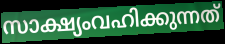
സാക്ഷ്യംവഹിക്കുന്നത്